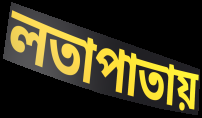
লতাপাতায়